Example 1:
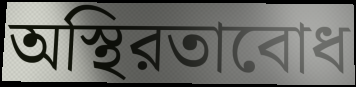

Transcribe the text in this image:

অস্থিরতাবোধ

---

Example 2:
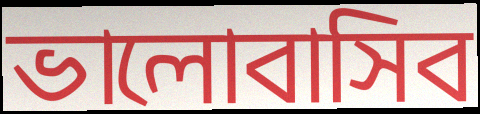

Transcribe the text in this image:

ভালোবাসিব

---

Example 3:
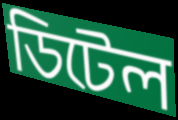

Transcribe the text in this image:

ডিটেল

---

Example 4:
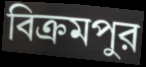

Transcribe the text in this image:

বিক্রমপুর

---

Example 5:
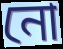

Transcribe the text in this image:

নো